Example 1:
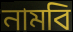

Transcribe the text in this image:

নামবি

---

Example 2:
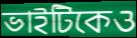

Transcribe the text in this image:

ভাইটিকেও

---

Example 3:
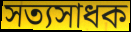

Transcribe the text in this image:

সত্যসাধক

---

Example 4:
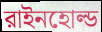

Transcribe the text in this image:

রাইনহোল্ড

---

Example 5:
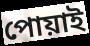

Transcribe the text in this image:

পোয়াই